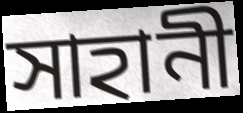
সাহানী